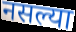
नसल्या